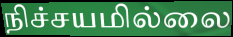
நிச்சயமில்லை